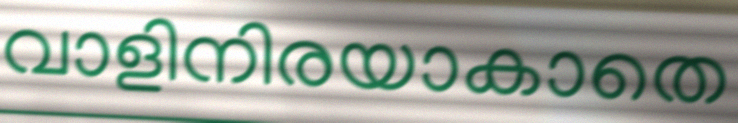
വാളിനിരയാകാതെ